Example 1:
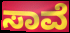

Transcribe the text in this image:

ಸಾವೆ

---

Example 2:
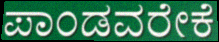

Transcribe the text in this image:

ಪಾಂಡವರೇಕೆ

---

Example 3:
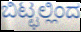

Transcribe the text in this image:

ಬಿಟ್ಟಲ್ಲಿಂದ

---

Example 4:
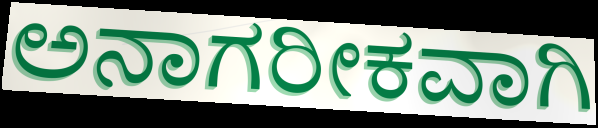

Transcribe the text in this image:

ಅನಾಗರೀಕವಾಗಿ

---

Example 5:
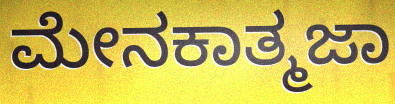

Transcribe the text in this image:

ಮೇನಕಾತ್ಮಜಾ